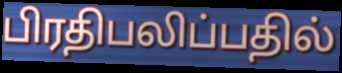
பிரதிபலிப்பதில்